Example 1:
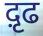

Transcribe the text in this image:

द़ृढ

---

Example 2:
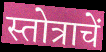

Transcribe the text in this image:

स्तोत्राचें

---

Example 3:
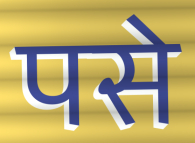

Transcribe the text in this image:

पसे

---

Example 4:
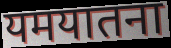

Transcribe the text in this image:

यमयातना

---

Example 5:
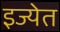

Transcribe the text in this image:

इज्येत